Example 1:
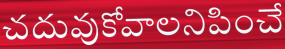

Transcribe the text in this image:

చదువుకోవాలనిపించే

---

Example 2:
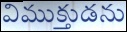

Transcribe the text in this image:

విముక్తుడను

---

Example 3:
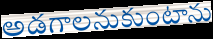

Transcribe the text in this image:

అడగాలనుకుంటాను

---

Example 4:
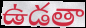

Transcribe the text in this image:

ఉడతా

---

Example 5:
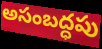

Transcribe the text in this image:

అసంబద్ధపు